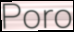
Poro